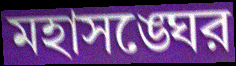
মহাসঙ্ঘের